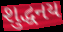
શુદ્ધનય